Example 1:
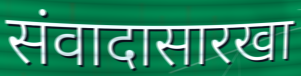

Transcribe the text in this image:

संवादासारखा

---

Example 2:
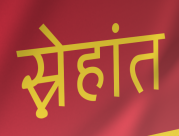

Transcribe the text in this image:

स्नेहांत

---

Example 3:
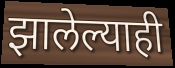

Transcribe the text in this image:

झालेल्याही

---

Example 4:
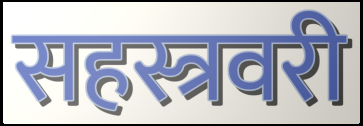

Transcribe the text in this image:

सहस्त्रवरी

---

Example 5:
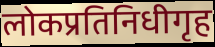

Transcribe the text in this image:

लोकप्रतिनिधीगृह